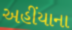
અહીંયાના